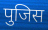
पुजिस